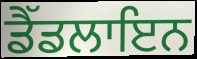
ਡੈੱਡਲਾਇਨ